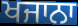
ਖਜਾਨਾ